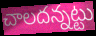
చాలదన్నట్టు